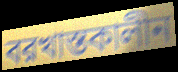
বরখাস্তকালীন